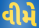
વીમે